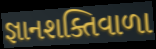
જ્ઞાનશક્તિવાળા